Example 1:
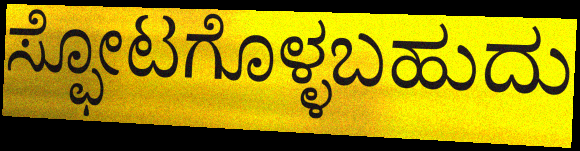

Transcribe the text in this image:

ಸ್ಫೋಟಗೊಳ್ಳಬಹುದು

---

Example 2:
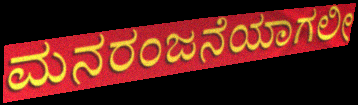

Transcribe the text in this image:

ಮನರಂಜನೆಯಾಗಲೀ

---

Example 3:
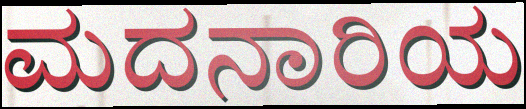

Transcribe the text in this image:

ಮದನಾರಿಯ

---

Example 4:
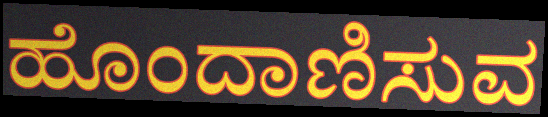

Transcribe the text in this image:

ಹೊಂದಾಣಿಸುವ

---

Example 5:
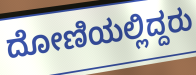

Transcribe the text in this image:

ದೋಣಿಯಲ್ಲಿದ್ದರು